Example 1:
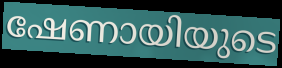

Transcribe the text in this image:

ഷേണായിയുടെ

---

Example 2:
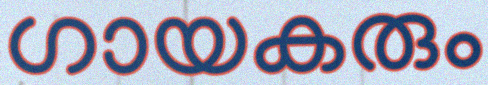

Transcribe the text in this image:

ഗായകരും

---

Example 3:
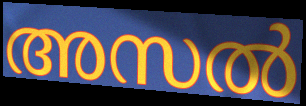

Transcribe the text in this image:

അസൽ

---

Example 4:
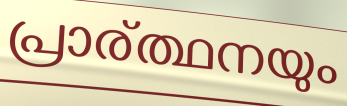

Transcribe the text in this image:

പ്രാര്ത്ഥനയും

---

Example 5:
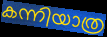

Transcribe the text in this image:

കന്നിയാത്ര